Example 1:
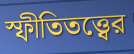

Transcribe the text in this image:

স্ফীতিতত্ত্বের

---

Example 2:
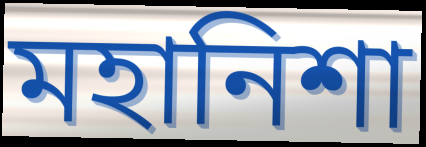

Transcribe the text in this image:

মহানিশা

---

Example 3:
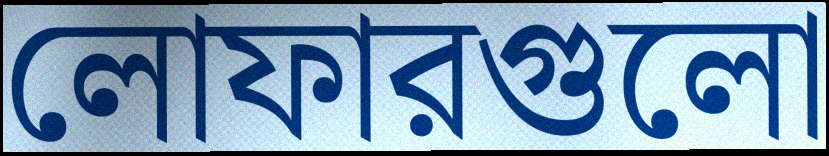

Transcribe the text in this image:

লোফারগুলো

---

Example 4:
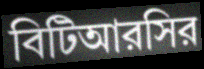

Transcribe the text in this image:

বিটিআরসির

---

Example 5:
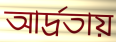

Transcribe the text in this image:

আর্দ্রতায়